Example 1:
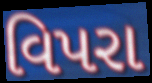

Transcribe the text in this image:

વિપરા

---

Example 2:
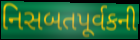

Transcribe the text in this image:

નિસબતપૂર્વકની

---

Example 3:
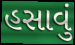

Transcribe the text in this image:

હસાવું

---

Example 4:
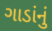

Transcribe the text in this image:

ગાડાંનું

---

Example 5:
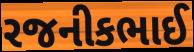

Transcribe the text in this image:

રજનીકભાઈ